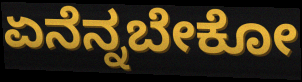
ಏನೆನ್ನಬೇಕೋ